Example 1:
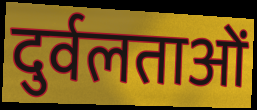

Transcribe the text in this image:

दुर्वलताओं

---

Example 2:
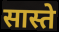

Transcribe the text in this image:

सास्ते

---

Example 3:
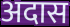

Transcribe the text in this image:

अदास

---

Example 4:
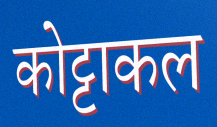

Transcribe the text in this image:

कोट्टाकल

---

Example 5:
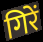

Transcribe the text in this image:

गिरें